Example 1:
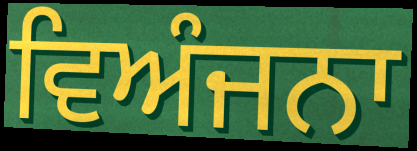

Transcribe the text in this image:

ਵਿਅੰਜਨਾ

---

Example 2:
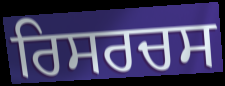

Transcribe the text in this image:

ਰਿਸਰਚਸ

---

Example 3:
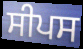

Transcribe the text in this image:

ਸੀਪਸ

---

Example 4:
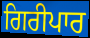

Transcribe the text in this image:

ਗਿਰੀਪਾਰ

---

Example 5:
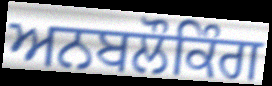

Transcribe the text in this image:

ਅਨਬਲੌਕਿੰਗ